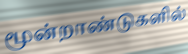
மூன்றாண்டுகளில்